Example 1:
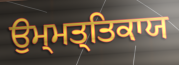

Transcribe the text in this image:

ਉਮ੍ਮਤ੍ਤਿਕਾਯ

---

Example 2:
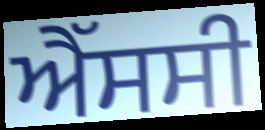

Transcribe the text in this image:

ਐੱਸਸੀ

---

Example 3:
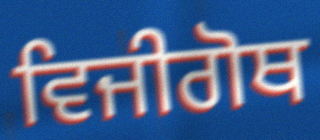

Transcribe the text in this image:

ਵਿਜੀਗੋਥ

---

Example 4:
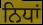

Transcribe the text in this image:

ਨਿਧਾਂ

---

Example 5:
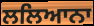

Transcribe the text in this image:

ਲਲਿਆਨਾ